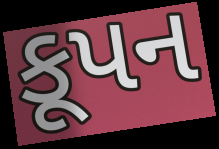
કૂપન